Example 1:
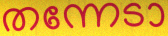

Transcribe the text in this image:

തന്നേടാ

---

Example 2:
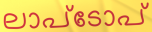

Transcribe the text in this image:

ലാപ്ടോപ്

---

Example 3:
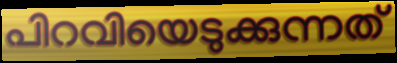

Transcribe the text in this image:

പിറവിയെടുക്കുന്നത്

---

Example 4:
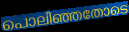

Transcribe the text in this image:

പൊലിഞ്ഞതോടെ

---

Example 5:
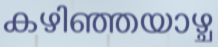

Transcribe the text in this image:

കഴിഞ്ഞയാഴ്ച